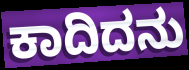
ಕಾದಿದನು